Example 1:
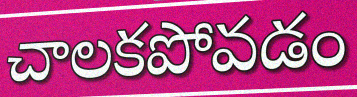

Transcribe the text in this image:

చాలకపోవడం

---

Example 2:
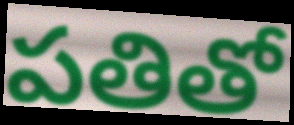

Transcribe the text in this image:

పతితో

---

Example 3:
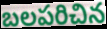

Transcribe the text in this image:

బలపరిచిన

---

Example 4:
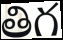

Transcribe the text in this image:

తిగ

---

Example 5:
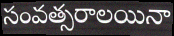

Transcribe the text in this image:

సంవత్సరాలయినా